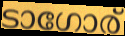
ടാഗോര്